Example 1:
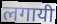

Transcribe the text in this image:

लगायी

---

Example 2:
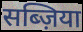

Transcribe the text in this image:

सब्ज़िया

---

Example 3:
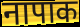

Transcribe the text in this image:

नापाक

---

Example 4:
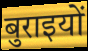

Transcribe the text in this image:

बुराइयों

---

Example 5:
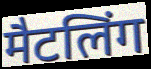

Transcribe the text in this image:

मैटलिंग